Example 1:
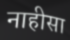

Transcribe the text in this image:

नाहीसा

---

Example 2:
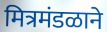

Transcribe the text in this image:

मित्रमंडळाने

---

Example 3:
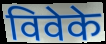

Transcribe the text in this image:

विवेके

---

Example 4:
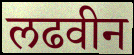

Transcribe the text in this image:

लढवीन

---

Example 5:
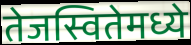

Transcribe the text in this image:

तेजस्वितेमध्ये